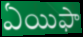
ఏయిఫా